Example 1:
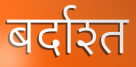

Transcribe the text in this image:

बर्दाश्त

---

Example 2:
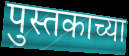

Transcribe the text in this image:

पुस्तकाच्या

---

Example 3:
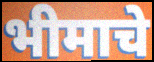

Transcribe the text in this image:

भीमाचे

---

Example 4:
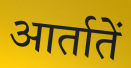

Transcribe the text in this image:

आर्तातें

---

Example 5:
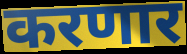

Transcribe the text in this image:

करणार